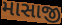
માસાજી